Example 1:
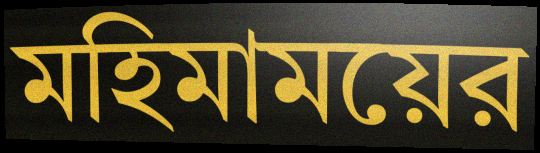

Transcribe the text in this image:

মহিমাময়ের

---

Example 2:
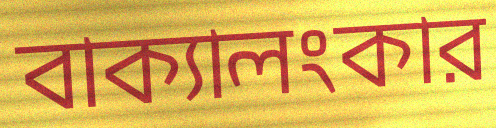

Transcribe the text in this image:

বাক্যালংকার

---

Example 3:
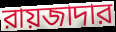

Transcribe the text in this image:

রায়জাদার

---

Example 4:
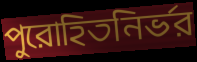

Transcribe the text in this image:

পুরোহিতনির্ভর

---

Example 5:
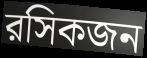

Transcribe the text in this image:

রসিকজন